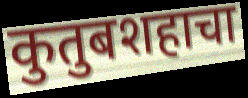
कुतुबशहाचा